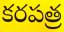
కరపత్ర